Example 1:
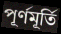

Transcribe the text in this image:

পূর্ণমূর্তি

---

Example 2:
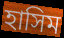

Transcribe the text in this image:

হাসিম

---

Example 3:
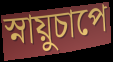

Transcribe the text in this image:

স্নায়ুচাপে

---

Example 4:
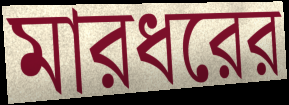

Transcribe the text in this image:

মারধরের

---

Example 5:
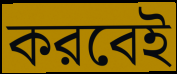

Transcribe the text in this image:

করবেই